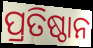
ପ୍ରତିଷ୍ଠାନ